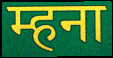
म्हना